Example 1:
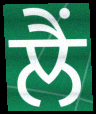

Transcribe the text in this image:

ਲੈਂ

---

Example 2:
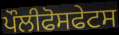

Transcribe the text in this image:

ਪੌਲੀਫੋਸਫੇਟਸ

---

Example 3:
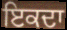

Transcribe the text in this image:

ਇਕਦਾ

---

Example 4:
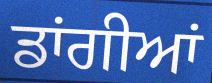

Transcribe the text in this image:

ਡਾਂਗੀਆਂ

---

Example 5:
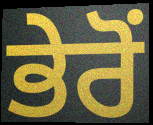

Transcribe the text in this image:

ਭੇਰੋਂ